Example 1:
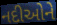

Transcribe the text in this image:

નદીઓને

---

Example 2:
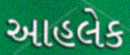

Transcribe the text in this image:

આહલેક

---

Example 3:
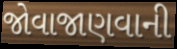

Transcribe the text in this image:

જોવાજાણવાની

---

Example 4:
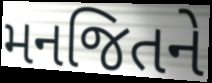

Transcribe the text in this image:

મનજિતને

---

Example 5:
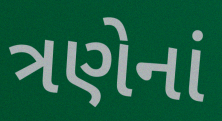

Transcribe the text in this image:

ત્રણેનાં